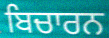
ਬਿਚਾਰਨ